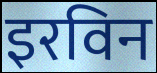
इरविन